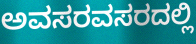
ಅವಸರವಸರದಲ್ಲಿ